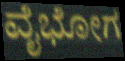
ವೈಭೋಗ